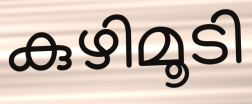
കുഴിമൂടി